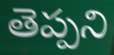
తెప్పని